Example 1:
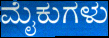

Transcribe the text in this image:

ಮೈಕುಗಳು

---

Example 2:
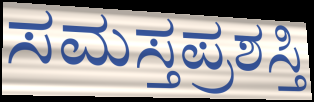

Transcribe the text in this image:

ಸಮಸ್ತಪ್ರಶಸ್ತಿ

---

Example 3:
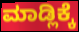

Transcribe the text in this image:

ಮಾಡ್ಲಿಕ್ಕೆ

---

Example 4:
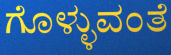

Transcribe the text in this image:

ಗೊಳ್ಳುವಂತೆ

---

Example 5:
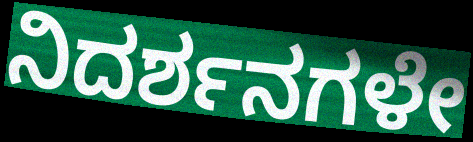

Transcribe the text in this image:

ನಿದರ್ಶನಗಳೇ